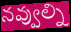
నవ్వుల్ని